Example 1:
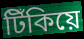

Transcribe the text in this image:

টিঁকিয়ে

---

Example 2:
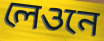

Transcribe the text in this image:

লেওনে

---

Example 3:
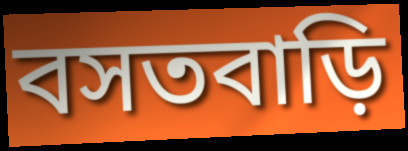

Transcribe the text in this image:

বসতবাড়ি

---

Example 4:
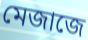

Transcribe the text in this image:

মেজাজে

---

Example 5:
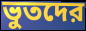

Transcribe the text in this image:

ভুতদের